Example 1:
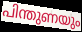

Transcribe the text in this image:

പിന്തുണയും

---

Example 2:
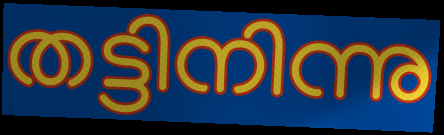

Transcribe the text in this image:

തട്ടിനിന്നു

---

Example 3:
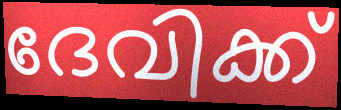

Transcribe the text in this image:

ദേവിക്ക്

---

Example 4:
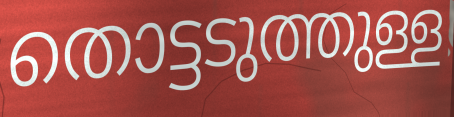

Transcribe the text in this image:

തൊട്ടടുത്തുള്ള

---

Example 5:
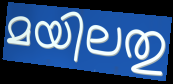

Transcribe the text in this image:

മയിലതു